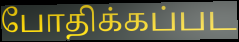
போதிக்கப்பட